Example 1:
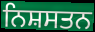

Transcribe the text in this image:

ਨਿਸ਼ਸਤਨ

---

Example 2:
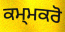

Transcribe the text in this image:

ਕਮ੍ਮਕਰੋ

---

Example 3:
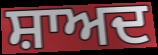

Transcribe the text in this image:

ਸ਼ਾਅਦ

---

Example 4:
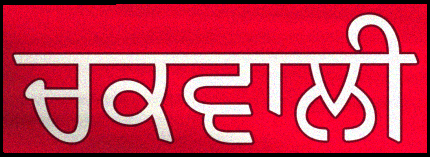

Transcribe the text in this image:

ਚਕਵਾਲੀ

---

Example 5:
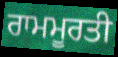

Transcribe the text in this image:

ਰਾਮਮੂਰਤੀ